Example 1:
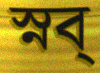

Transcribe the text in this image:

স্নব্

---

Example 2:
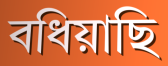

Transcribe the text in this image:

বধিয়াছি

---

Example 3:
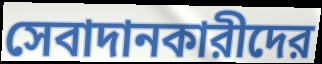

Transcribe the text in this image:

সেবাদানকারীদের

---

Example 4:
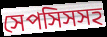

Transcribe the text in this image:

সেপসিসসহ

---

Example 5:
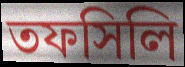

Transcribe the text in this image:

তফসিলি